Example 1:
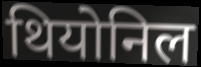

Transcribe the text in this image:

थियोनिल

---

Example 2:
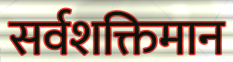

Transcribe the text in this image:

सर्वशक्तिमान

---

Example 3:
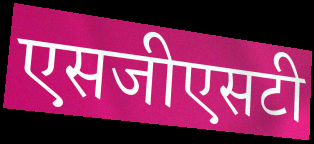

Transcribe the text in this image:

एसजीएसटी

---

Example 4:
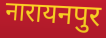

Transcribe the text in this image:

नारायनपुर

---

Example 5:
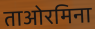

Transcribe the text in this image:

ताओरमिना